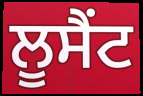
ਲੂਸੈਂਟ